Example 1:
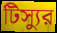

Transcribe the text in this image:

টিস্যুর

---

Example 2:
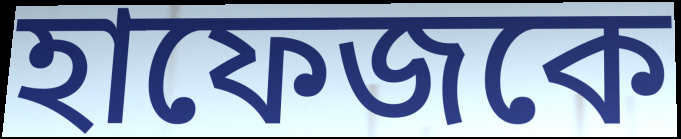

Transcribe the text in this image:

হাফেজকে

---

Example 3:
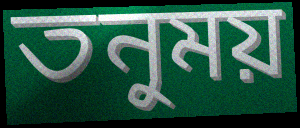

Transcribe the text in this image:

তনুময়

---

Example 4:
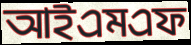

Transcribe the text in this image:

আইএমএফ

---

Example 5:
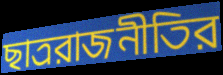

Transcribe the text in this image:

ছাত্ররাজনীতির